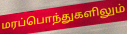
மரப்பொந்துகளிலும்